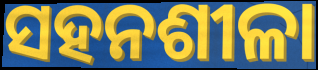
ସହନଶୀଳା